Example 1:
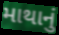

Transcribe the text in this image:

માથાનું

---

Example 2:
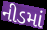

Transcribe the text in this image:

નીડમાં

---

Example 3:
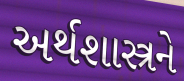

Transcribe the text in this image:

અર્થશાસ્ત્રને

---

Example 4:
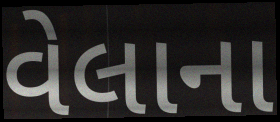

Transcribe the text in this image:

વેલાના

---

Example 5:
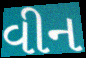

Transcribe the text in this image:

વીન